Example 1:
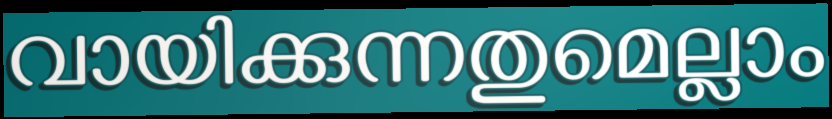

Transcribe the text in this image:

വായിക്കുന്നതുമെല്ലാം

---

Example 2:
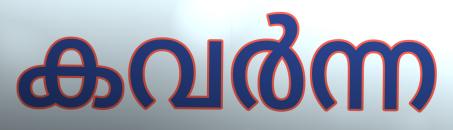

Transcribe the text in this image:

കവർന്ന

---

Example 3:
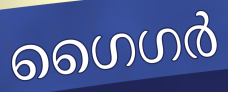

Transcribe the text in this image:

ഗൈഗർ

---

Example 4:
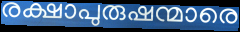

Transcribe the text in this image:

രക്ഷാപുരുഷന്മാരെ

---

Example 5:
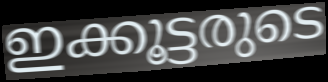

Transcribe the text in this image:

ഇക്കൂട്ടരുടെ